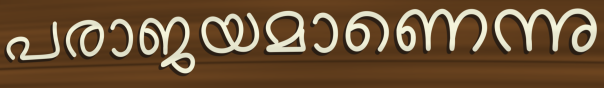
പരാജയമാണെന്നു